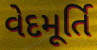
વેદમૂર્તિ